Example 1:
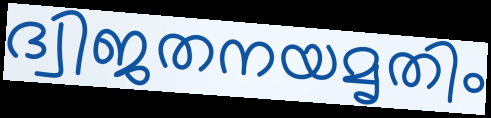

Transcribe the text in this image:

ദ്വിജതനയമൃതിം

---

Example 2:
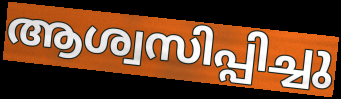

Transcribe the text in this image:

ആശ്വസിപ്പിച്ചു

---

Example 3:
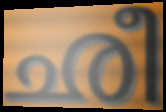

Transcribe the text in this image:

ഛീ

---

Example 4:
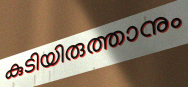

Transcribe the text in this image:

കുടിയിരുത്താനും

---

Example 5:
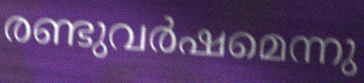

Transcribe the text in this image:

രണ്ടുവർഷമെന്നു